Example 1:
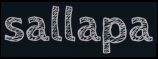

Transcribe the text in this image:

sallapa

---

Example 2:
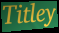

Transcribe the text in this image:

Titley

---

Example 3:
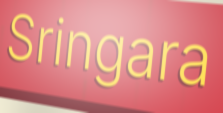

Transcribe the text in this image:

Sringara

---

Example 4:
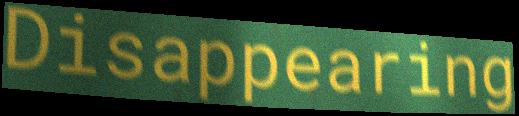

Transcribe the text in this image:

Disappearing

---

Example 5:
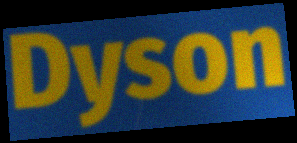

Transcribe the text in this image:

Dyson